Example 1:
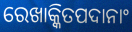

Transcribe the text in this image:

ରେଖାକ୍କିତପଦାନାଂ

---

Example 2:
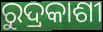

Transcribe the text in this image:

ରୁଦ୍ରକାଶୀ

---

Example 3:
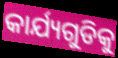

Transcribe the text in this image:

କାର୍ଯ୍ୟଗୁଡିକୁ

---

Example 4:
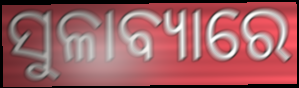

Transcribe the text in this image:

ସୁଳାବ୍ୟାରେ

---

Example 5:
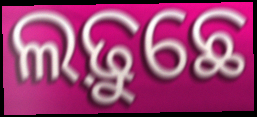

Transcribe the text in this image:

ଲଢ଼ୁଛେ